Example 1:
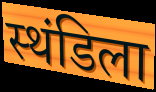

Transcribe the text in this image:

स्थंडिला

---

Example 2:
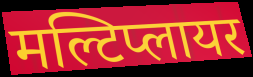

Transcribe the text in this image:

मल्टिप्लायर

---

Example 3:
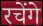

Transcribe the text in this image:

रचेंगे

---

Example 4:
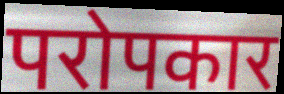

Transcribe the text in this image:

परोपकार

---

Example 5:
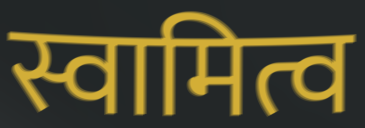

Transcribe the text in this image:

स्वामित्व